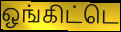
ஒங்கிட்டெ